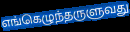
எங்கெழுந்தருளுவது